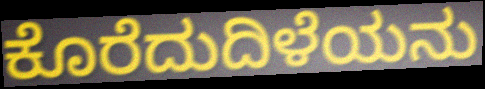
ಕೊರೆದುದಿಳೆಯನು